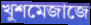
খুশমেজাজে